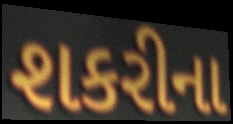
શકરીના